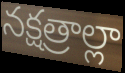
నక్షత్రాల్లా